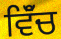
ਵਿੱੰਚ